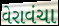
વેરાવંચા